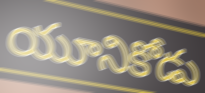
యూనికోడు